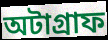
অটাগ্রাফ